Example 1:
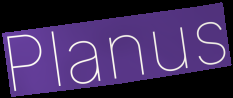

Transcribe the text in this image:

Planus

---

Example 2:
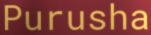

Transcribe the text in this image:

Purusha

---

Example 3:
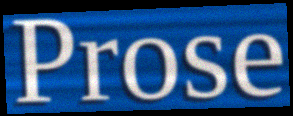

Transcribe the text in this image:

Prose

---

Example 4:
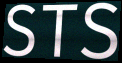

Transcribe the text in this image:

STS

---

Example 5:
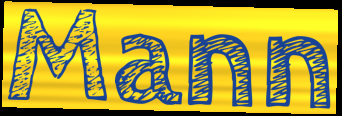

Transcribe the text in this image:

Mann